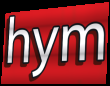
hym